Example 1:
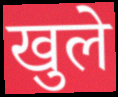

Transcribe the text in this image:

खुले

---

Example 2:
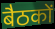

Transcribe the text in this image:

बैठकों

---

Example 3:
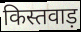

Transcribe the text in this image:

किस्तवाड़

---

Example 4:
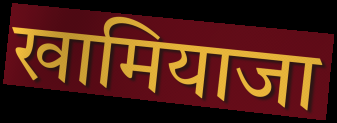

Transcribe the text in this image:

खामियाजा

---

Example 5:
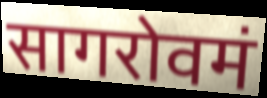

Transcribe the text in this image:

सागरोवमं